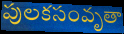
పులకసంవృతా